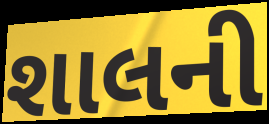
શાલની